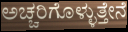
ಅಚ್ಚರಿಗೊಳ್ಳುತ್ತೇನೆ